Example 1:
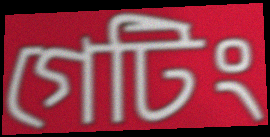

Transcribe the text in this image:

গেটিং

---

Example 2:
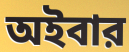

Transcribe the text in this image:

অইবার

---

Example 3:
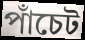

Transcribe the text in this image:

পাঁচেট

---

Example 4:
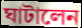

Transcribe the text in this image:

ঘাটালেন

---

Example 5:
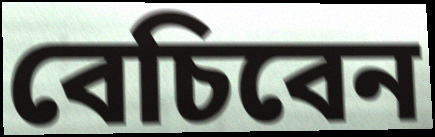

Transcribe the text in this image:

বেচিবেন